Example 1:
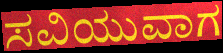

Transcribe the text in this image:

ಸವಿಯುವಾಗ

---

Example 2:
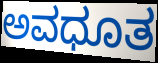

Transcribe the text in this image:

ಅವಧೂತ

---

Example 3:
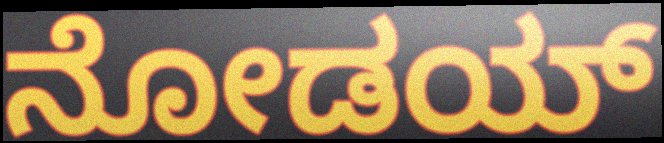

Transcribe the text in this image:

ನೋಡಯ್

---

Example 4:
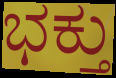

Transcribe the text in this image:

ಭಕ್ತು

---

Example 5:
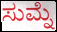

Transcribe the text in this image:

ಸುಮ್ನೆ